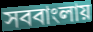
সববাংলায়